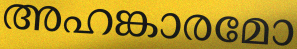
അഹങ്കാരമോ